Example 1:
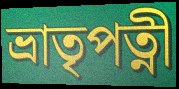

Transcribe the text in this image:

ভ্রাতৃপত্নী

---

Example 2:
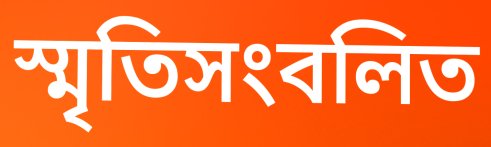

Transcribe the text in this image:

স্মৃতিসংবলিত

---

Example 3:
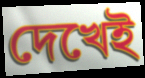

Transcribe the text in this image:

দেখেই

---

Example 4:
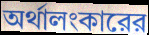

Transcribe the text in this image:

অর্থালংকারের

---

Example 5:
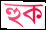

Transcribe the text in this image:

হুক